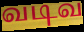
வடிவ